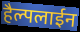
हैल्पलाईन